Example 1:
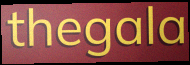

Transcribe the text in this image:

thegala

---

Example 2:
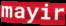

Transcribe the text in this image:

mayir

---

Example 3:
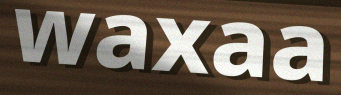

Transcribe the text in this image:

waxaa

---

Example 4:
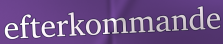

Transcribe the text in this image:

efterkommande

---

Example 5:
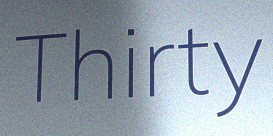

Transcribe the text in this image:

Thirty